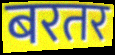
बरतर